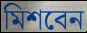
মিশবেন